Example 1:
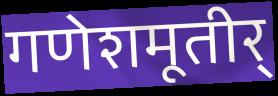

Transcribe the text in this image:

गणेशमूतीर्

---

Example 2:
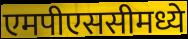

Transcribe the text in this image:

एमपीएससीमध्ये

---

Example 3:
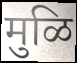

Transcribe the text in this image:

मुळि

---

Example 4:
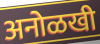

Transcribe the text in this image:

अनोळखी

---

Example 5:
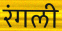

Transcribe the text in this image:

रंगली